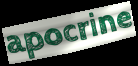
apocrine